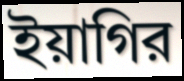
ইয়াগির